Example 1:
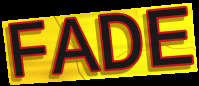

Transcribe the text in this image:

FADE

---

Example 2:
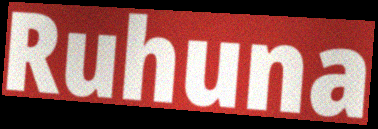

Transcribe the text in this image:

Ruhuna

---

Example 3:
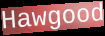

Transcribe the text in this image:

Hawgood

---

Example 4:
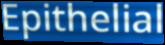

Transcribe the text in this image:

Epithelial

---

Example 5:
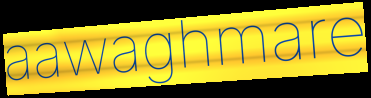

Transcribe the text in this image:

aawaghmare